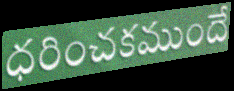
ధరించకముందే